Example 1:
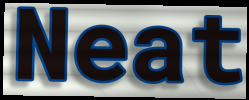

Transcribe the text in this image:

Neat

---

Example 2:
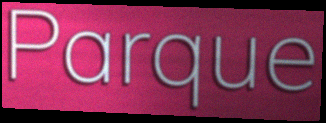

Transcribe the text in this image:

Parque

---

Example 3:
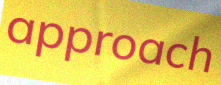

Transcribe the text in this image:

approach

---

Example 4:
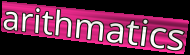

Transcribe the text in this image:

arithmatics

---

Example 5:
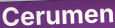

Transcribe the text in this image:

Cerumen